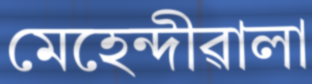
মেহেন্দীৱালা